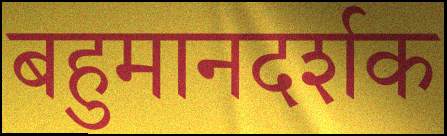
बहुमानदर्शक